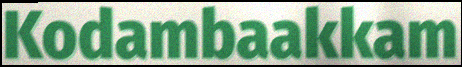
Kodambaakkam